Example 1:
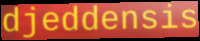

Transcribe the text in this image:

djeddensis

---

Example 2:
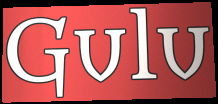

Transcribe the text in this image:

Gulu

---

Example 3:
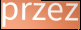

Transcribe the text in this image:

przez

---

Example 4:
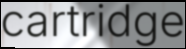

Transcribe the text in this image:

cartridge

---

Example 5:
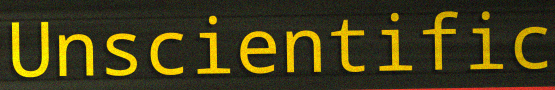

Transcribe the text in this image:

Unscientific